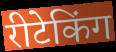
रीटेकिंग